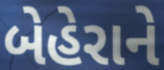
બેહેરાને